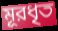
মূরধৃত